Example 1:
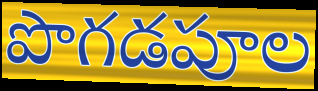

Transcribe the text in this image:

పొగడపూల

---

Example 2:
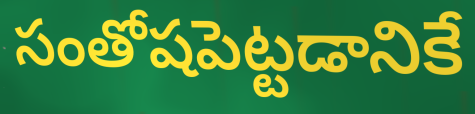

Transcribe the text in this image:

సంతోషపెట్టడానికే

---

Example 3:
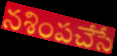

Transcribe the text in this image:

నశింపచేసే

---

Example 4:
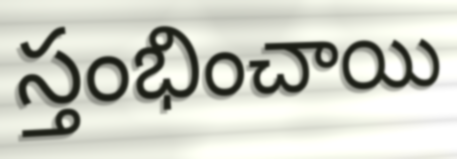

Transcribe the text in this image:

స్తంభించాయి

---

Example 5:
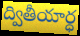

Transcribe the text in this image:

ద్వితీయార్ధ